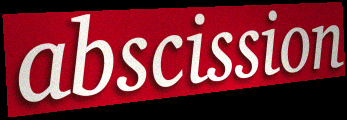
abscission